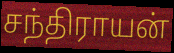
சந்திராயன்